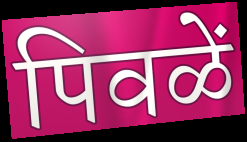
पिवळें